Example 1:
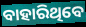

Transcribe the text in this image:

ବାହାରିଥିବେ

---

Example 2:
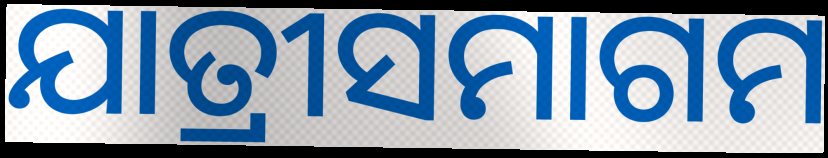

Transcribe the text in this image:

ଯାତ୍ରୀସମାଗମ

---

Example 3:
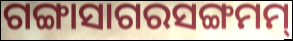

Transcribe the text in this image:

ଗଙ୍ଗାସାଗରସଙ୍ଗମମ୍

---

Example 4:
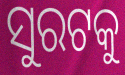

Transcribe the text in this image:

ସୁରଟକୁ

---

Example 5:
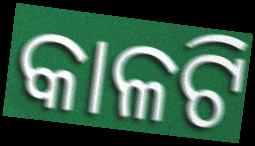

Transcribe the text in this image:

କାଳଟି